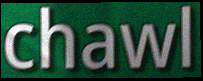
chawl